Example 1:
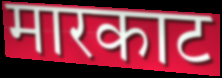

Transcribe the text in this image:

मारकाट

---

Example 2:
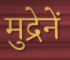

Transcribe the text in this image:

मुद्रेनें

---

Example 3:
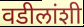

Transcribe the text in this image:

वडीलांशी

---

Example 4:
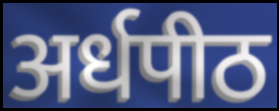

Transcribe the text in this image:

अर्धपीठ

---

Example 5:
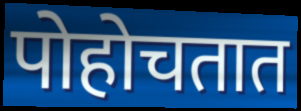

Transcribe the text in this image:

पोहोचतात